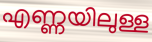
എണ്ണയിലുള്ള